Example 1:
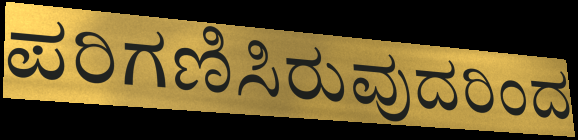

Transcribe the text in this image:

ಪರಿಗಣಿಸಿರುವುದರಿಂದ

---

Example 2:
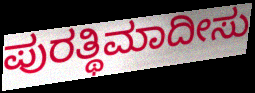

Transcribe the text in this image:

ಪುರತ್ಥಿಮಾದೀಸು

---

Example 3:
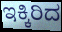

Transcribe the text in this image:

ಇಕ್ಕಿರಿದ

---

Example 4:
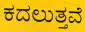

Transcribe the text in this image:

ಕದಲುತ್ತವೆ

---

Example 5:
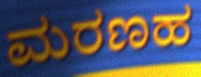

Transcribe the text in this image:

ಮರಣಹ